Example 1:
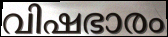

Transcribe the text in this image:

വിഷഭാരം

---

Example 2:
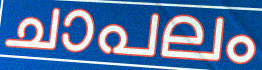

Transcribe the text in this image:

ചാപലം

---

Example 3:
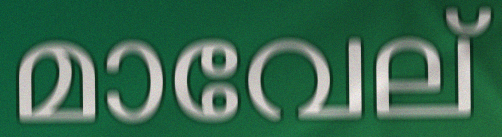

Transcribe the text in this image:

മാവേല്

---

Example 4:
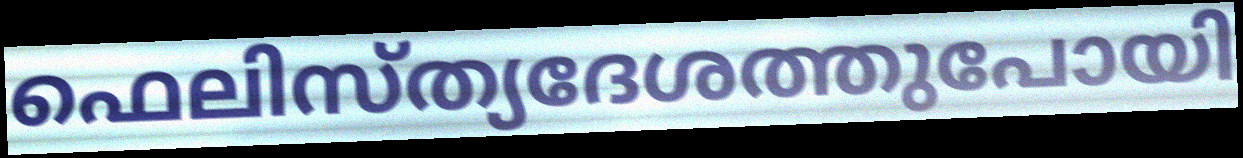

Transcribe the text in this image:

ഫെലിസ്ത്യദേശത്തുപോയി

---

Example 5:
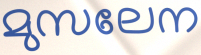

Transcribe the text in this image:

മുസലേന